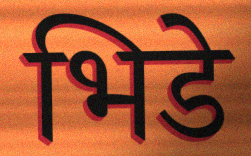
भिडे